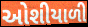
ઓશીયાળી